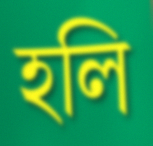
হলি